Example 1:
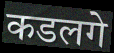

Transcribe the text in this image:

कडलगे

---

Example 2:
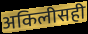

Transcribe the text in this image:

अकिलीसही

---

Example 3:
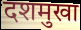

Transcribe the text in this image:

दशमुखा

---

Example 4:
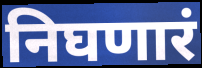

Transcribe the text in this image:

निघणारं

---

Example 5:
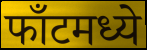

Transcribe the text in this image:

फाँटमध्ये